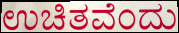
ಉಚಿತವೆಂದು